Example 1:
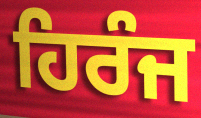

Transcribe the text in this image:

ਹਿਰੰਜ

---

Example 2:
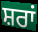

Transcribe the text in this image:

ਸ਼ਰਾਂ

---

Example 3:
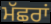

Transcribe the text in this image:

ਮੱਛਰਾਂ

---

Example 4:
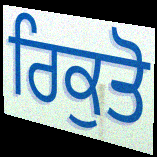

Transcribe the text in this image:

ਰਿਕੁਤੋ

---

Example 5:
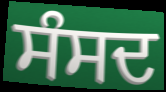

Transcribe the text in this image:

ਸੰਸਦ